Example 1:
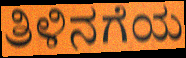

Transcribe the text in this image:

ತಿಳಿನಗೆಯ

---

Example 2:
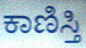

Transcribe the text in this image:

ಕಾಣಿಸ್ತಿ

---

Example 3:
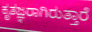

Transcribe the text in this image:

ಕೃತಜ್ಞರಾಗಿರುತ್ತಾರೆ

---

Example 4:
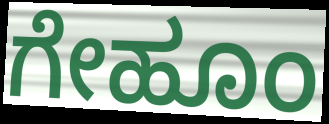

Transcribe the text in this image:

ಗೇಹೂಂ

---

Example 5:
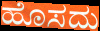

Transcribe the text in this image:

ಹೊಸದು